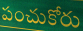
పంచుకోరు